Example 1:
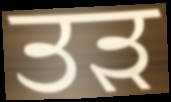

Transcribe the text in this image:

ਤੜ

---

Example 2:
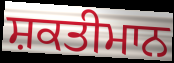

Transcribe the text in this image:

ਸ਼ਕਤੀਮਾਨ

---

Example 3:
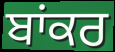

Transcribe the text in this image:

ਬਾਂਕਰ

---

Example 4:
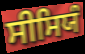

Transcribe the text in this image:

ਸੀਸਿਯੰ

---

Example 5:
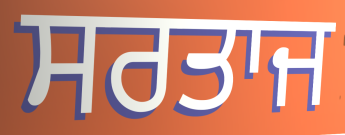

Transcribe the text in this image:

ਸਰਤਾਜ